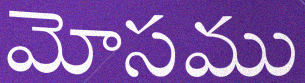
మోసము